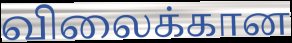
விலைக்கான